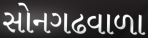
સોનગઢવાળા